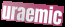
uraemic